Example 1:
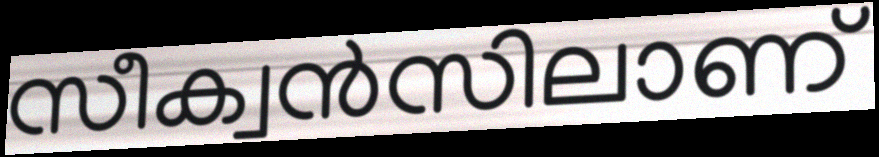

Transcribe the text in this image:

സീക്വൻസിലാണ്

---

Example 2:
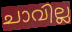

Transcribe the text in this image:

ചാവില്ല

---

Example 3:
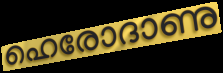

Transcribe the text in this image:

ഹെരോദാണു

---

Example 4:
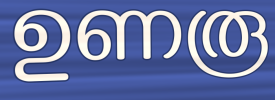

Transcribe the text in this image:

ഉണരൂ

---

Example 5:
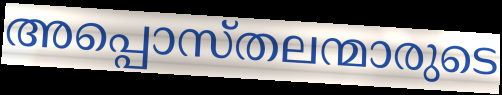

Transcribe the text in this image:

അപ്പൊസ്തലന്മാരുടെ